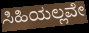
ಸಿಹಿಯಲ್ಲವೇ